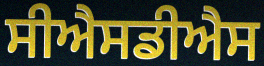
ਸੀਐਸਡੀਐਸ